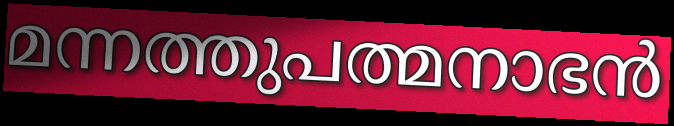
മന്നത്തുപത്മനാഭൻ